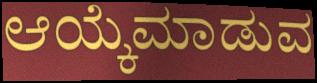
ಆಯ್ಕೆಮಾಡುವ